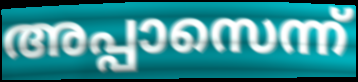
അപ്പാസെന്ന്